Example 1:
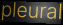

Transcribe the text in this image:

pleural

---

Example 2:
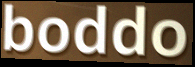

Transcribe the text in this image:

boddo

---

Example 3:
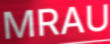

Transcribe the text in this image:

MRAU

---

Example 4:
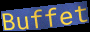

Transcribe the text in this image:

Buffet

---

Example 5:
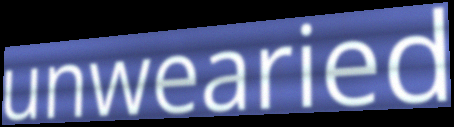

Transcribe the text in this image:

unwearied